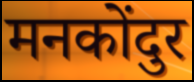
मनकोंदुर